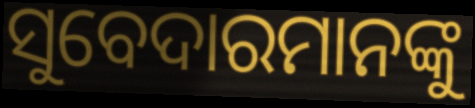
ସୁବେଦାରମାନଙ୍କୁ